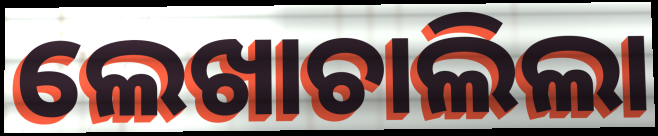
ଲେଖାଚାଲିଲା